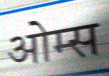
ओम्स